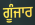
ਗੂੰਜਾਰ